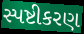
સ્પષ્ટીકરણ